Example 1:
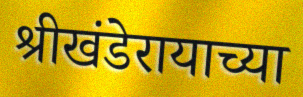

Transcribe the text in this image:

श्रीखंडेरायाच्या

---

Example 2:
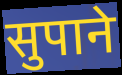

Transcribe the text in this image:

सुपाने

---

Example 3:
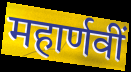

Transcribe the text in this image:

महार्णवीं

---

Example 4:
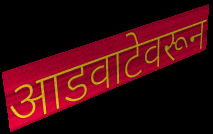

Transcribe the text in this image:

आडवाटेवरून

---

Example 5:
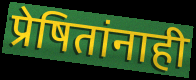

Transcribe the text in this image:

प्रेषितांनाही